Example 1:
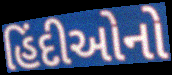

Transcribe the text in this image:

હિંદીઓનો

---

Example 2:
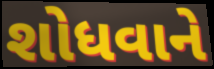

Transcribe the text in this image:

શોધવાને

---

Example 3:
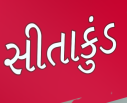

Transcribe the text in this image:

સીતાકુંડ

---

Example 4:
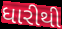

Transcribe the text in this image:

ધારીથી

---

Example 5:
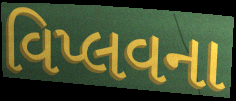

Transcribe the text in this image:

વિપ્લવના